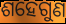
ଶହେଗୁଣ